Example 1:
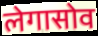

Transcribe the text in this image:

लेगासोव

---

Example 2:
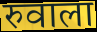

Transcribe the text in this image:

रुवाला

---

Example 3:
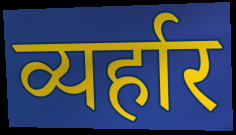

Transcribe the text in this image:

व्यर्हार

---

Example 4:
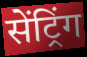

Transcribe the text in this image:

सेंट्रिंग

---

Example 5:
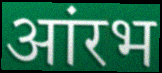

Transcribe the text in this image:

आंरभ